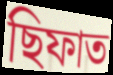
ছিফাত